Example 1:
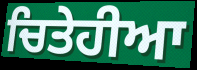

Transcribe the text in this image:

ਚਿਤੇਹੀਆ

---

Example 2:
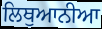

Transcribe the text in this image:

ਲਿਥੁਆਨੀਆ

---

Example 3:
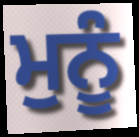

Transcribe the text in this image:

ਮੁਨੂੰ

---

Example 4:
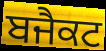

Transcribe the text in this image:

ਬਜੈਕਟ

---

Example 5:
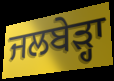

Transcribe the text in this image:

ਜਲਬੇੜ੍ਹਾ